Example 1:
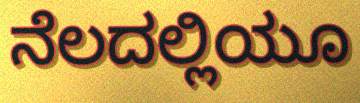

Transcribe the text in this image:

ನೆಲದಲ್ಲಿಯೂ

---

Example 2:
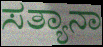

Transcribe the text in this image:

ಸತ್ಯಾನಾ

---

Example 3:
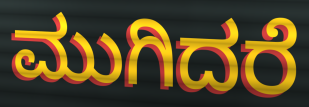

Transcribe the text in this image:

ಮುಗಿದರೆ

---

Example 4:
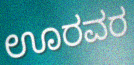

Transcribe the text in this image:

ಊರವರ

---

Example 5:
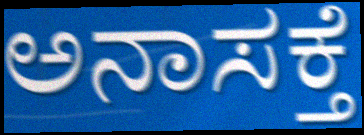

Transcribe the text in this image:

ಅನಾಸಕ್ತೆ